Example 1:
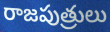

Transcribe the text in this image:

రాజపుత్రులు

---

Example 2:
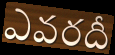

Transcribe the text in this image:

ఎవరదీ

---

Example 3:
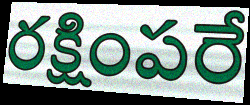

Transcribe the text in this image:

రక్షింపరే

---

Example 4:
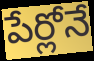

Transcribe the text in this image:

పేర్లోనే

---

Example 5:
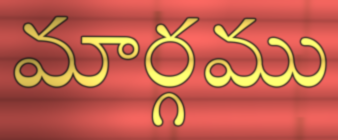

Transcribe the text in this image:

మార్గము